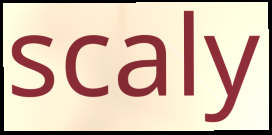
scaly